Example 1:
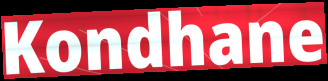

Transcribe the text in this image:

Kondhane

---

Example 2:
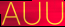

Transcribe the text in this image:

AUU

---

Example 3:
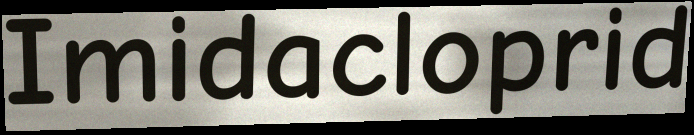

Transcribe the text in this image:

Imidacloprid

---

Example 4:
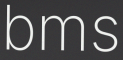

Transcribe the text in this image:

bms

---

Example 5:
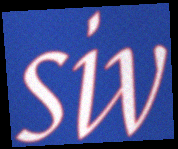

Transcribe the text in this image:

siv